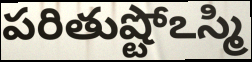
పరితుష్టోఽస్మి